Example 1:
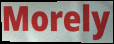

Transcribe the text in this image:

Morely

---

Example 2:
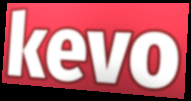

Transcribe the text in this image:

kevo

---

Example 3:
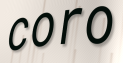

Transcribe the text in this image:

coro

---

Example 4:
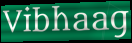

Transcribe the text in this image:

Vibhaag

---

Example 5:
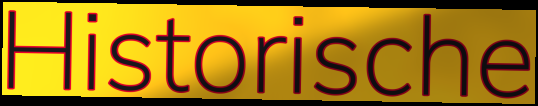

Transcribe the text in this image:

Historische